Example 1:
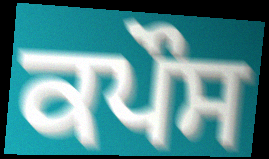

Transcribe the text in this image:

ਕਪੌਸ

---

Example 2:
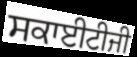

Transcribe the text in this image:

ਸਕਾਈਟੀਜੀ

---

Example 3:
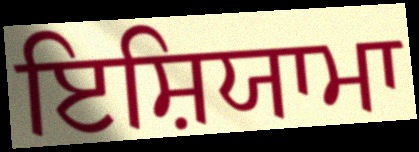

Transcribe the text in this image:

ਇਸ਼ਿਯਾਮਾ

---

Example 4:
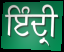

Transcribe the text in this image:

ਇੰਦ੍ਰੀ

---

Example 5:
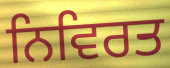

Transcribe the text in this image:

ਨਿਵਿਰਤ